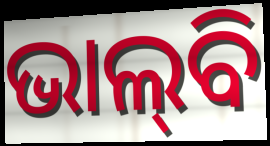
ଭାଲ୍‌ବି